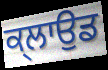
ਕ੍ਲਾਉਡ